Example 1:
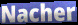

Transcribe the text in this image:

Nacher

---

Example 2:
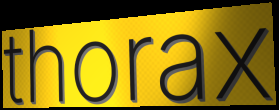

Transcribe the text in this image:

thorax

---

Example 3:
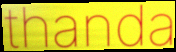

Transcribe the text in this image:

thanda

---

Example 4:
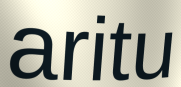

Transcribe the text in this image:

aritu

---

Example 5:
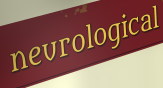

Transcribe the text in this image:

neurological